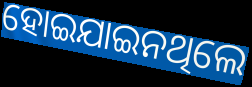
ହୋଇଯାଇନଥିଲେ